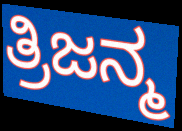
ತ್ರಿಜನ್ಮ